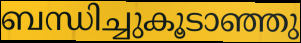
ബന്ധിച്ചുകൂടാഞ്ഞു